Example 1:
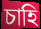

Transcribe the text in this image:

চাহি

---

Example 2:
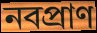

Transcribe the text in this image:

নবপ্রাণ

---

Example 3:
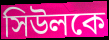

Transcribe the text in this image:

সিউলকে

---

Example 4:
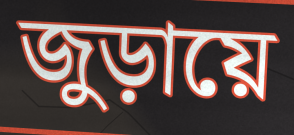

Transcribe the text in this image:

জুড়ায়ে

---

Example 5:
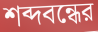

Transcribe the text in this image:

শব্দবন্ধের